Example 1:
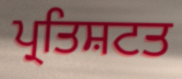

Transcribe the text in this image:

ਪ੍ਰਤਿਸ਼ਟਤ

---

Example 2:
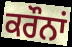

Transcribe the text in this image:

ਕਰੌਨਾਂ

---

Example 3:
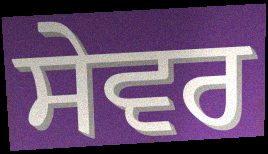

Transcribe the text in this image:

ਸੇਵਰ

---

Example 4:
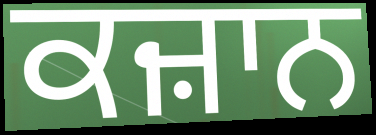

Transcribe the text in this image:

ਕਜ਼ਾਨ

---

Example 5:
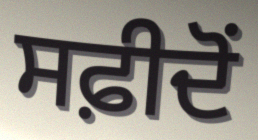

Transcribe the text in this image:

ਸਫ਼ੀਦੋਂ